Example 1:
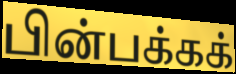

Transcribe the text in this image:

பின்பக்கக்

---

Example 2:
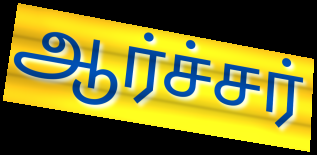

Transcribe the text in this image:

ஆர்ச்சர்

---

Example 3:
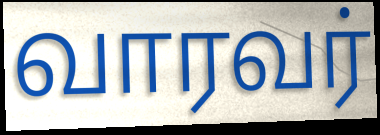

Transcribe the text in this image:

வாரவர்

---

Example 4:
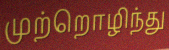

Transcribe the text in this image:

முற்றொழிந்து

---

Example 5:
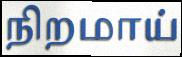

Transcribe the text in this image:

நிறமாய்